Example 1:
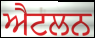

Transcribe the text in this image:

ਐਟਲਨ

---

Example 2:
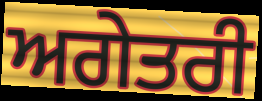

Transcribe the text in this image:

ਅਗੇਤਰੀ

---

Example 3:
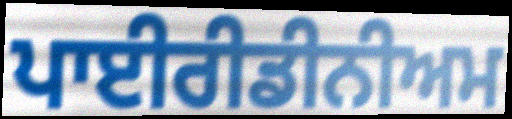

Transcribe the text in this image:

ਪਾਈਰੀਡੀਨੀਅਮ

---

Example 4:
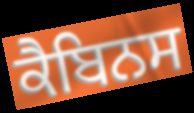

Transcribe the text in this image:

ਕੈਬਿਨਸ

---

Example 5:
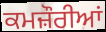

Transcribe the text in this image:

ਕਮਜ਼ੌਰੀਆਂ